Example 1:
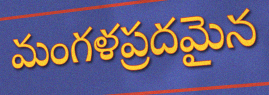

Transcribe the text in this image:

మంగళప్రదమైన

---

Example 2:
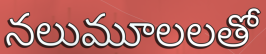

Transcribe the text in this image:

నలుమూలలతో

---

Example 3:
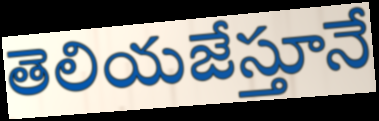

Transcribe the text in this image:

తెలియజేస్తూనే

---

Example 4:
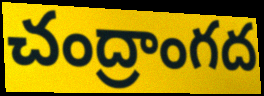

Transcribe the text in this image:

చంద్రాంగద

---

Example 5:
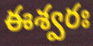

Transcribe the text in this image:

ఈశ్వరః